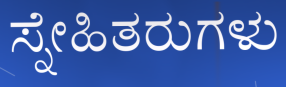
ಸ್ನೇಹಿತರುಗಳು